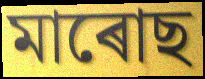
মাৰোছ